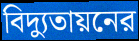
বিদ্যুতায়নের